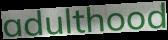
adulthood